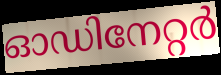
ഓഡിനേറ്റർ